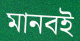
মানবই